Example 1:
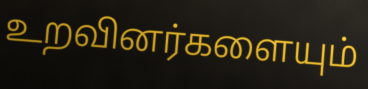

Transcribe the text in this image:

உறவினர்களையும்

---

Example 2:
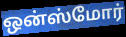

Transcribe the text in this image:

ஒன்ஸ்மோர்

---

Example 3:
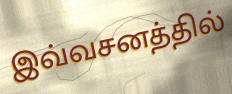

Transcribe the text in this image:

இவ்வசனத்தில்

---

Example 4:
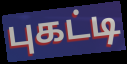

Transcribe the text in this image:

புகட்டி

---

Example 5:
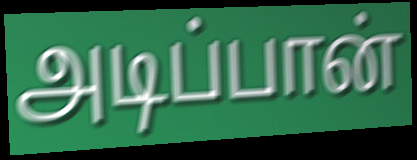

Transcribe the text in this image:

அடிப்பான்